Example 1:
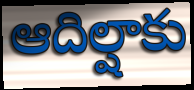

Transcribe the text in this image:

ఆదిల్షాకు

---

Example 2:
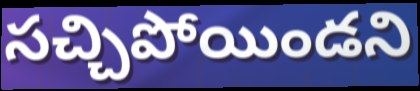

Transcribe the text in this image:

సచ్చిపోయిండని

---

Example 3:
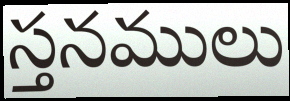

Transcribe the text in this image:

స్తనములు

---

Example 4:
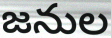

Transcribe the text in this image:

జనుల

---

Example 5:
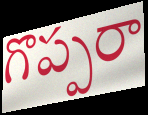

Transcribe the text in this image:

గొప్పరా